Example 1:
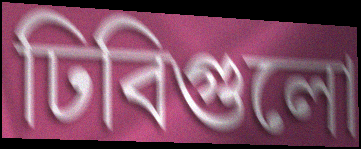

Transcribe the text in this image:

ঢিবিগুলো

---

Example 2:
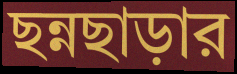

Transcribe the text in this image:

ছন্নছাড়ার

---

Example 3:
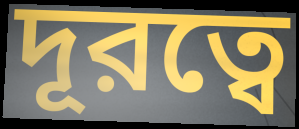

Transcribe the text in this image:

দূরত্বে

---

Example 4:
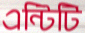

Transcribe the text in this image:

এন্টিটি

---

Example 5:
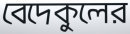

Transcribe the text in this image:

বেদেকুলের